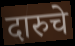
दारुचे